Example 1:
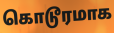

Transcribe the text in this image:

கொடூரமாக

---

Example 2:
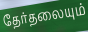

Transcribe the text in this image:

தேர்தலையும்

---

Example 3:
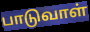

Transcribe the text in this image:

பாடுவாள்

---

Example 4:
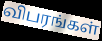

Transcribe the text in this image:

விபரங்கள்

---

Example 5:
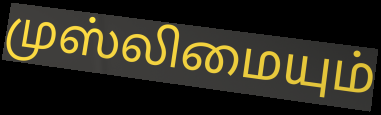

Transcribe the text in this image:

முஸ்லிமையும்